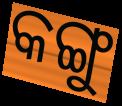
କଙ୍ଗୁ